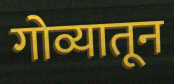
गोव्यातून